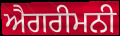
ਐਗਰੀਮਨੀ